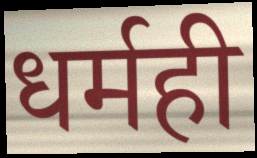
धर्मही